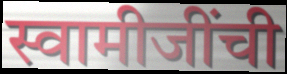
स्वामीजींची